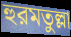
হুরমতুল্লা